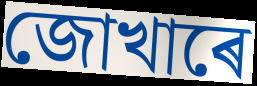
জোখাৰে